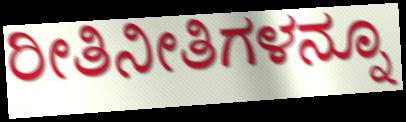
ರೀತಿನೀತಿಗಳನ್ನೂ